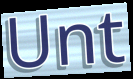
Unt